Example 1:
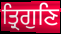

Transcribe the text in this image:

ਤ੍ਰਿਗੁਣਿ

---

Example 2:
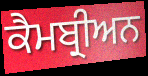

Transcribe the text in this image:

ਕੈਮਬ੍ਰੀਅਨ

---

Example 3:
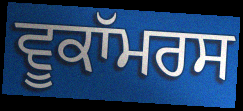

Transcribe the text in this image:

ਵੂਕਾੱਮਰਸ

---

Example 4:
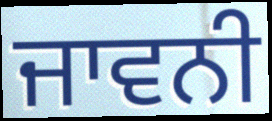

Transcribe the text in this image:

ਜਾਵਨੀ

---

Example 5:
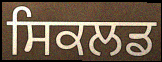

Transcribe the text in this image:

ਸਿਕਲਡ